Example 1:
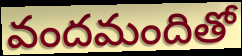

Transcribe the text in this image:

వందమందితో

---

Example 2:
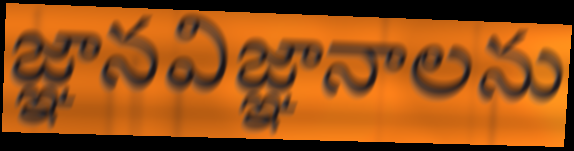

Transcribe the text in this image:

జ్ఞానవిజ్ఞానాలను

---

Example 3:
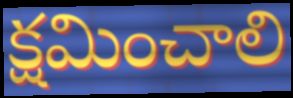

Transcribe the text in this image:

క్షమించాలి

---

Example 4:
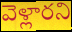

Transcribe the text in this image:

వెళ్లారని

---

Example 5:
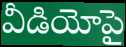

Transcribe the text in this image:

వీడియోపై